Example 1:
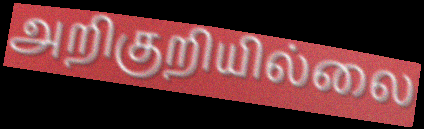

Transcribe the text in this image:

அறிகுறியில்லை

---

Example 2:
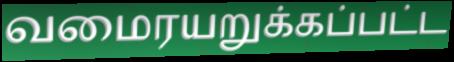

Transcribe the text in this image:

வமைரயறுக்கப்பட்ட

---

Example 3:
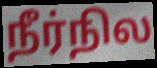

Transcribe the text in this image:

நீர்நில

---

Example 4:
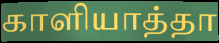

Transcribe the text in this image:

காளியாத்தா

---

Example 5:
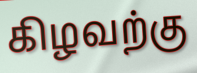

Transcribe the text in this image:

கிழவற்கு